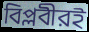
বিপ্লবীরই